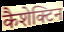
कैशेक्टिन